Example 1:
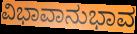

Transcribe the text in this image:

ವಿಭಾವಾನುಭಾವ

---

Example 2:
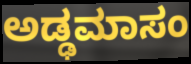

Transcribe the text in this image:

ಅಡ್ಢಮಾಸಂ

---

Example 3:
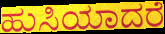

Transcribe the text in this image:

ಹುಸಿಯಾದರೆ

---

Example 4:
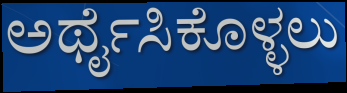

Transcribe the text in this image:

ಅರ್ಥೈಸಿಕೊಳ್ಳಲು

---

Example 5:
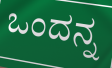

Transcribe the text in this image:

ಒಂದನ್ನ